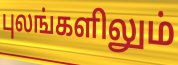
புலங்களிலும்